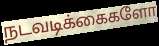
நடவடிக்கைகளோ